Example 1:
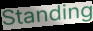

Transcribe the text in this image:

Standing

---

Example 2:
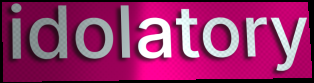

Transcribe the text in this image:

idolatory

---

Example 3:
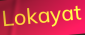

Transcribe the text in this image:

Lokayat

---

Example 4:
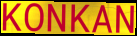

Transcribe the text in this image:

KONKAN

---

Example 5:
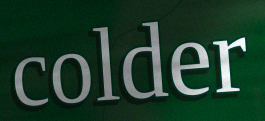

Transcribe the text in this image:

colder